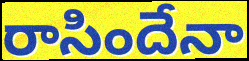
రాసిందేనా